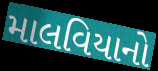
માલવિયાનો